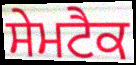
ਸੇਮਟੈਕ